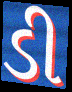
ડી